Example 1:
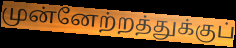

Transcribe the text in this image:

முன்னேற்றத்துக்குப்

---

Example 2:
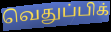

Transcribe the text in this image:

வெதுப்பிக்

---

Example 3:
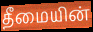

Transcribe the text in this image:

தீமையின்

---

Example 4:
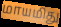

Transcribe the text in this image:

மாயமிது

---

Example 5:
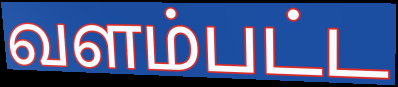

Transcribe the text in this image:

வளம்பட்ட